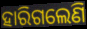
ହାରିଗଲେଣି